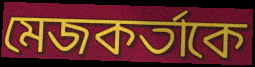
মেজকর্তাকে